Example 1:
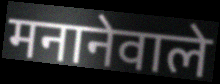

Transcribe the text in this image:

मनानेवाले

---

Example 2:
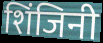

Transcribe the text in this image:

शिंजिनी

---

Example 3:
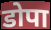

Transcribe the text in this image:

डोपा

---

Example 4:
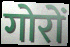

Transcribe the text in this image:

गोरों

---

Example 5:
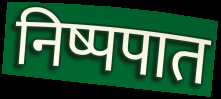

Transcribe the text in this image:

निष्पपात